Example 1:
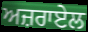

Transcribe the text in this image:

ਅਜ਼ਰਾਏਲ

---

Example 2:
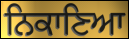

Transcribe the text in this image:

ਨਿਕਾਣਿਆ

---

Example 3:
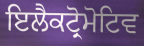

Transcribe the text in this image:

ਇਲੈਕਟ੍ਰੋਮੋਟਿਵ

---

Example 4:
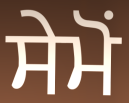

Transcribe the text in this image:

ਸੇਮੋਂ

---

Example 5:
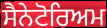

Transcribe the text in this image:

ਸੈਨੇਟੋਰਿਅਮ